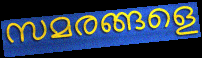
സമരങ്ങളെ